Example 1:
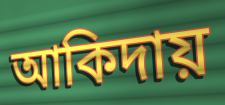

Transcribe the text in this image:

আকিদায়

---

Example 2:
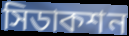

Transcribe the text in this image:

সিডাকশন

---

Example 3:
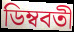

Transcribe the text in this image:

ডিম্ববতী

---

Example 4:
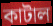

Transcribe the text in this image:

কাটাল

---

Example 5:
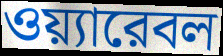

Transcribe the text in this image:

ওয়্যারেবল